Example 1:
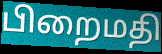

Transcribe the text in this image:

பிறைமதி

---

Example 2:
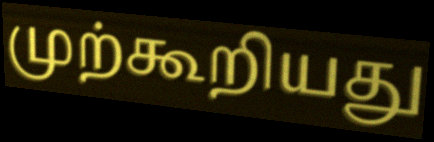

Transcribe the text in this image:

முற்கூறியது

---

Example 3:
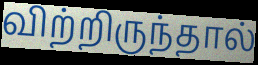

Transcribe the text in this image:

விற்றிருந்தால்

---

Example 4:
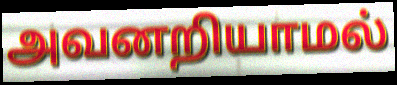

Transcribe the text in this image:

அவனறியாமல்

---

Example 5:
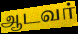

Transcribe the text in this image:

ஆடவர்